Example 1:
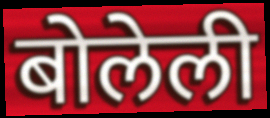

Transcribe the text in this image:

बोलेली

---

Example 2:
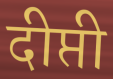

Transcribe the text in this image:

दीप्ती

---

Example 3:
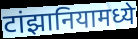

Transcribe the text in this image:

टांझानियामध्ये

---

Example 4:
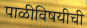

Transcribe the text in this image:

पाळीविषयीची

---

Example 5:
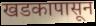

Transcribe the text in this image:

खडकापासून